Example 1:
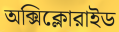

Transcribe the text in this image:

অক্সিক্লোরাইড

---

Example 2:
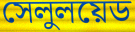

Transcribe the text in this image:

সেলুলয়েড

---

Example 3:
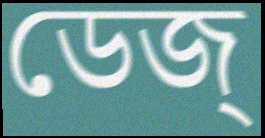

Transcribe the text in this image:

ডেজ্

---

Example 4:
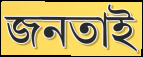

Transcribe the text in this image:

জনতাই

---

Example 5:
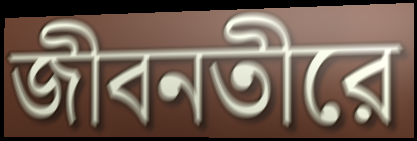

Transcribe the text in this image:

জীবনতীরে